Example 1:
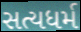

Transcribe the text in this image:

સત્યધર્મ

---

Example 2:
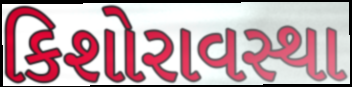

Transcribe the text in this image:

કિશોરાવસ્થા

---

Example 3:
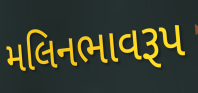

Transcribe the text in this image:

મલિનભાવરૂપ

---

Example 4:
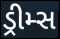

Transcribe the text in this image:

ડ્રીમ્સ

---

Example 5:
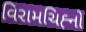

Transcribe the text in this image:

વિરામચિહ્‍નો